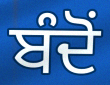
ਬੰਦੋਂ